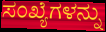
ಸಂಖ್ಯೆಗಳನ್ನು